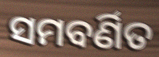
ସମବର୍ଣିତ